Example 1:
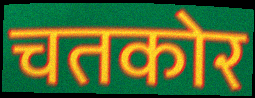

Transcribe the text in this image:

चतकोर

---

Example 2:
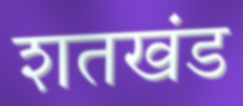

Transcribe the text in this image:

शतखंड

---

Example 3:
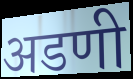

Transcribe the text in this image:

अडणी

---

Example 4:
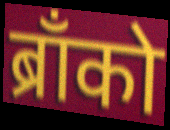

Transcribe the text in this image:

ब्राँको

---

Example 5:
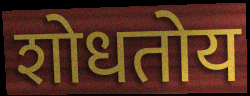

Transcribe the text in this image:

शोधतोय